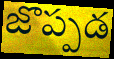
జొప్పడ